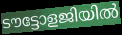
ടൗട്ടോളജിയിൽ